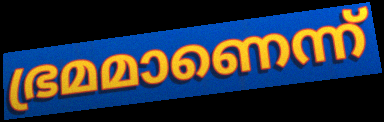
ഭ്രമമാണെന്ന്